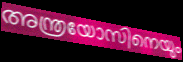
അന്ത്രയോസിനെയും